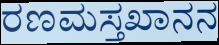
ರಣಮಸ್ತಖಾನನ